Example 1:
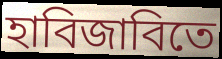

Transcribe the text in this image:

হাবিজাবিতে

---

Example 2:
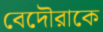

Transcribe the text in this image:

বেদৌরাকে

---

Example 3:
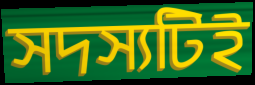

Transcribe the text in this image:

সদস্যটিই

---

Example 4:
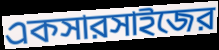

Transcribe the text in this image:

একসারসাইজের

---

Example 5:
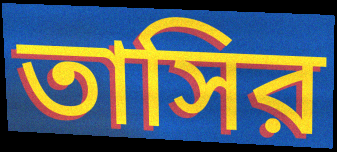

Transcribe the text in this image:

তাসির